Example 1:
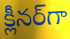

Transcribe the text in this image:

క్లీనర్‌గా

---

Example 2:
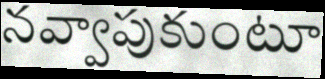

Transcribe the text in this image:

నవ్వాపుకుంటూ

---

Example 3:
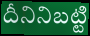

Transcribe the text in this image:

దీనినిబట్టి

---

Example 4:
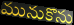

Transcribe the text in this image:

మునుకొను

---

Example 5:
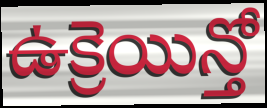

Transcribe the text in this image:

ఉక్రెయిన్తో